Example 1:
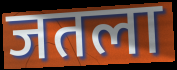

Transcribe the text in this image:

जतला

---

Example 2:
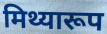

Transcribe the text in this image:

मिथ्यारूप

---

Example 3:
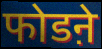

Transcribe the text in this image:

फोडऩे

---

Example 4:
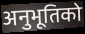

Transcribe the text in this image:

अनुभूतिको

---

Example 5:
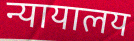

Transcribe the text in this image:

न्‍यायालय